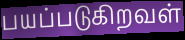
பயப்படுகிறவள்